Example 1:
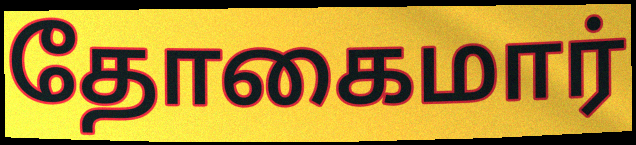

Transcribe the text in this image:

தோகைமார்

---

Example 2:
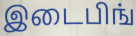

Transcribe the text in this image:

இடைபிங்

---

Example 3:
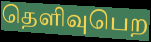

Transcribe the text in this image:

தெளிவுபெற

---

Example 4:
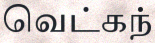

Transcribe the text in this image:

வெட்கந்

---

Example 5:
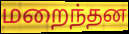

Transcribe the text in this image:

மறைந்தன